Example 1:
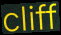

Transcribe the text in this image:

cliff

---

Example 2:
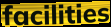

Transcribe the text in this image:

facilities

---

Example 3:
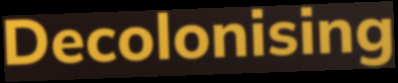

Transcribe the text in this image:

Decolonising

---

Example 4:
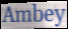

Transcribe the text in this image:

Ambey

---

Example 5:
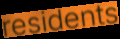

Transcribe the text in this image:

residents